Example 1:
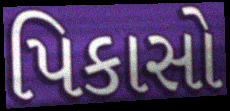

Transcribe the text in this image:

પિકાસો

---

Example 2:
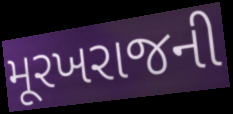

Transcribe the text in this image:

મૂરખરાજની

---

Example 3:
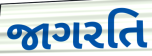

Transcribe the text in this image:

જાગરતિ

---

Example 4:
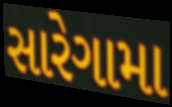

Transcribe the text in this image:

સારેગામા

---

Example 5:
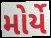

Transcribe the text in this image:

મોર્યે